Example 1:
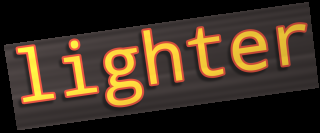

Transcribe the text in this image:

lighter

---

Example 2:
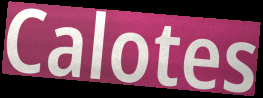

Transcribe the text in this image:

Calotes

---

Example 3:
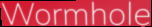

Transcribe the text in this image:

Wormhole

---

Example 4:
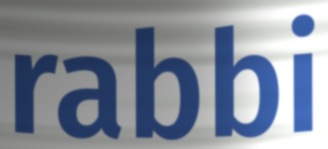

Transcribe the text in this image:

rabbi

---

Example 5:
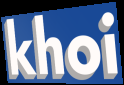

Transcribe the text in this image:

khoi